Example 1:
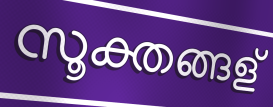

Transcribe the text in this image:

സൂക്തങ്ങള്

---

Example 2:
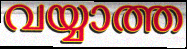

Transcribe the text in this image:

വയ്യാത്ത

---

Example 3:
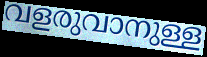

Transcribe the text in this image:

വളരുവാനുള്ള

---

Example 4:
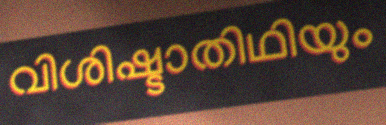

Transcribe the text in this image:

വിശിഷ്ടാതിഥിയും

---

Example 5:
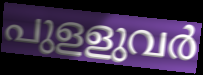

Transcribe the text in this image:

പുളളുവർ